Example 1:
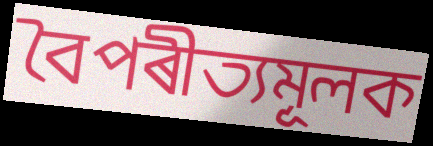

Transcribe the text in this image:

বৈপৰীত্যমূলক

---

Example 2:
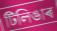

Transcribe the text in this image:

টিলিঙাৰ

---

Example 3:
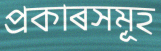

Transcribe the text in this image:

প্ৰকাৰসমূহ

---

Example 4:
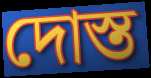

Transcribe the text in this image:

দোস্ত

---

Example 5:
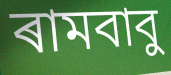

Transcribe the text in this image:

ৰামবাবু